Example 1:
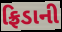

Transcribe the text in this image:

ફ્રિડાની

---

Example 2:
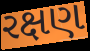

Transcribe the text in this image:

રક્ષણ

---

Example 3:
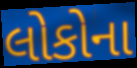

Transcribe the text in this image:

લોકોના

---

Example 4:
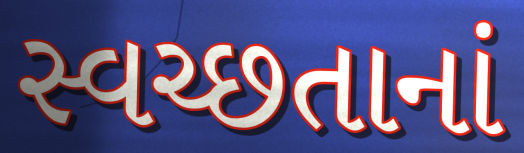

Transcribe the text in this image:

સ્વચ્છતાનાં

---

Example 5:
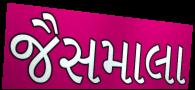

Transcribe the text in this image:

જૈસમાલા